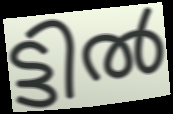
ട്ടിൽ